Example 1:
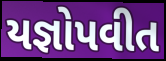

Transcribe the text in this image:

યજ્ઞોપવીત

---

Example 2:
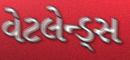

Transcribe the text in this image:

વેટલેન્ડ્સ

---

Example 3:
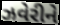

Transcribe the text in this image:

ઝવેરીને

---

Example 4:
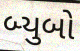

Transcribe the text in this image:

બ્યુબો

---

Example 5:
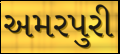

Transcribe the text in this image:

અમરપુરી